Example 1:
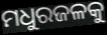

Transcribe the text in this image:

ମଧୁରଜଳକୁ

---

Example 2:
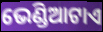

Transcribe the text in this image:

ଭେଣ୍ଡିଆଟାଏ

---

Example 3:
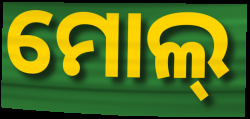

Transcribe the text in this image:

ମୋଲ୍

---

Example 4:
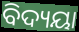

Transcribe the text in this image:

ବିଦ୍ୟୟା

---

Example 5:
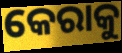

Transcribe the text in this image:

କେରାକୁ